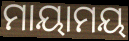
ମାୟାମୟ